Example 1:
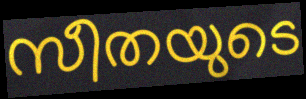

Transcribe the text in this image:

സീതയുടെ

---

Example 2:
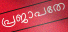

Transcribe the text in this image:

പ്രജാപതേ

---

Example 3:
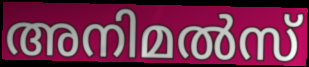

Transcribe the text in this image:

അനിമൽസ്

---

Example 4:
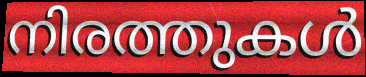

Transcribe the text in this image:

നിരത്തുകൾ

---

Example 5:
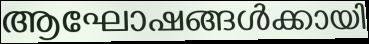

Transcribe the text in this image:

ആഘോഷങ്ങൾക്കായി